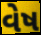
વેષ